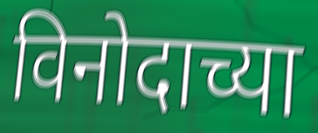
विनोदाच्या